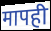
मापही